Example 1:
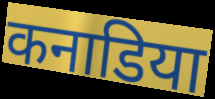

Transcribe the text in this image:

कनाडिया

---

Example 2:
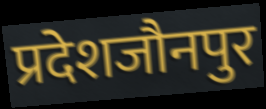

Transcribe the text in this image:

प्रदेशजौनपुर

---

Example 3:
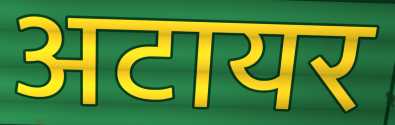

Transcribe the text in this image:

अटायर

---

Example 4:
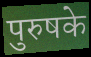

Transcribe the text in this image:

पुरुषके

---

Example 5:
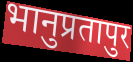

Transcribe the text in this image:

भानुप्रतापुर